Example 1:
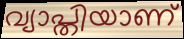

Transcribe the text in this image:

വ്യാപ്തിയാണ്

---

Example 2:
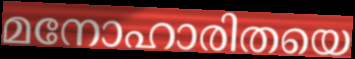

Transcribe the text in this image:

മനോഹാരിതയെ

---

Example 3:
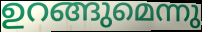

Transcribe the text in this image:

ഉറങ്ങുമെന്നു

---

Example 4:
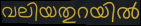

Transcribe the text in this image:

വലിയതുറയിൽ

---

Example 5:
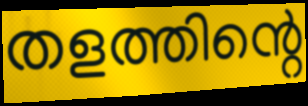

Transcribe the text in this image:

തളത്തിന്റെ